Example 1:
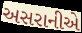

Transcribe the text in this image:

અસરાનીએ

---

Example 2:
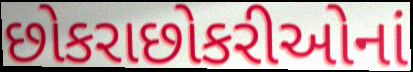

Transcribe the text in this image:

છોકરાછોકરીઓનાં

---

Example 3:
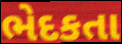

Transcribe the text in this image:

ભેદકતા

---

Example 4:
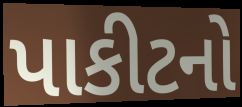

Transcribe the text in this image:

પાકીટનો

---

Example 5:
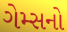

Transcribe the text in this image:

ગેમ્સનો